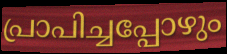
പ്രാപിച്ചപ്പോഴും